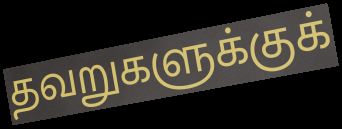
தவறுகளுக்குக்